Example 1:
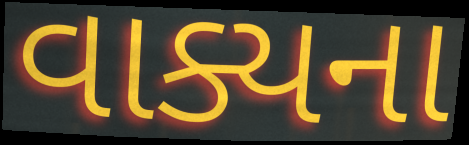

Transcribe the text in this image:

વાક્યના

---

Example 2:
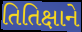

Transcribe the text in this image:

તિતિક્ષાને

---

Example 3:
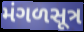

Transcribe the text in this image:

મંગળસૂત્ર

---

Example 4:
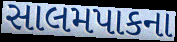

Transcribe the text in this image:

સાલમપાકના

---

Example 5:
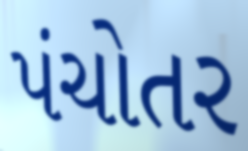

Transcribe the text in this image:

પંચોતર